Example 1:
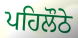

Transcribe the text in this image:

ਪਹਿਲੌਠੇ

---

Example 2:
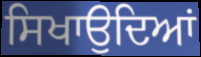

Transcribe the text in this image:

ਸਿਖਾਉਦਿਆਂ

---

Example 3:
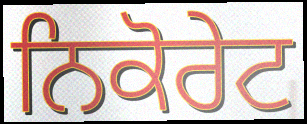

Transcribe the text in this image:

ਨਿਕੋਰੇਟ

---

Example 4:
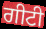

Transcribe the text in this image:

ਗੀਟੀ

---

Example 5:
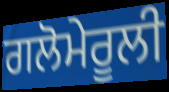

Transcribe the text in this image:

ਗਲੋਮੇਰੂਲੀ